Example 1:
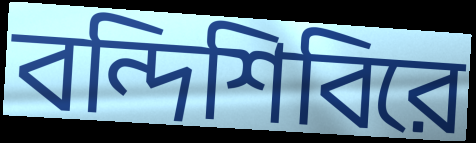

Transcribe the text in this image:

বন্দিশিবিরে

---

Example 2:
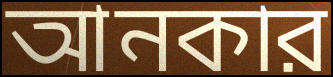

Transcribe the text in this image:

আনকার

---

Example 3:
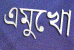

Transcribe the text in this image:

এমুখো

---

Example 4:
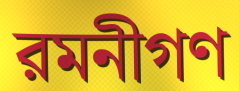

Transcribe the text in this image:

রমনীগণ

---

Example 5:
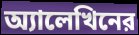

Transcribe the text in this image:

অ্যালেখিনের